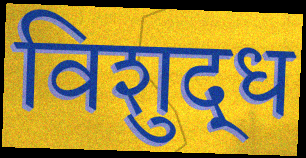
विशुद्ध